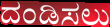
ದಂಡಿಸಲು